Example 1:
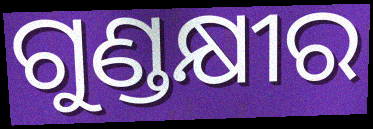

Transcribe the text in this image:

ଗୁଣ୍ଡକ୍ଷୀର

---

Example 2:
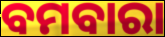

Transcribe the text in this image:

ବମବାରା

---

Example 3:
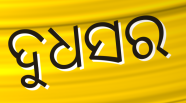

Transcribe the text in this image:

ଦୁଧସର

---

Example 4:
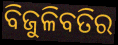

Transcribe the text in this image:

ବିଜୁଳିବତିର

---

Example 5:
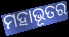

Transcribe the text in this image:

ମହାଭୂତର